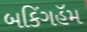
બકિંગહૅમ